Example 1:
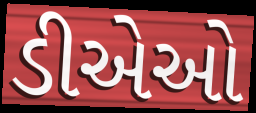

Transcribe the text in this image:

ડીએઓ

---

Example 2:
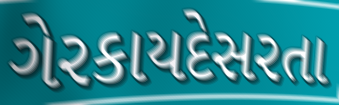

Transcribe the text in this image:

ગેરકાયદેસરતા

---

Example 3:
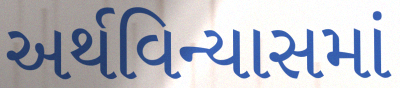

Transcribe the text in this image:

અર્થવિન્યાસમાં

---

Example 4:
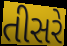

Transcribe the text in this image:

તીસરે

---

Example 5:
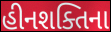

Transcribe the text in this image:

હીનશક્તિના